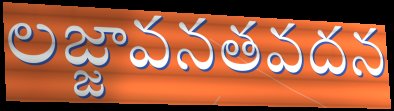
లజ్జావనతవదన